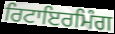
ਰਿਟਾਇਰਮਿੰਗ